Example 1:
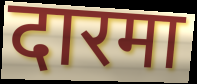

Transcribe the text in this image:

दारमा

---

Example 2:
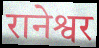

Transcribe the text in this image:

रानेश्वर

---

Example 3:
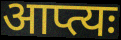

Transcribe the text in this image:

आप्त्यः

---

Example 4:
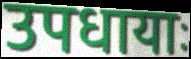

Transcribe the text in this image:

उपधायाः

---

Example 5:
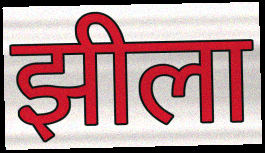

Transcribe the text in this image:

झीला